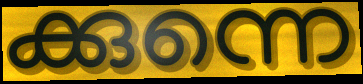
ക്കുന്നെ